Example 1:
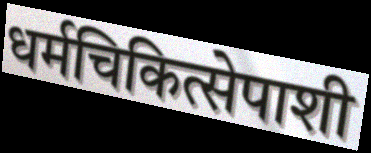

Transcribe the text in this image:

धर्मचिकित्सेपाशी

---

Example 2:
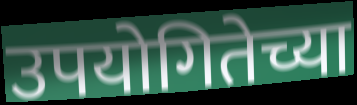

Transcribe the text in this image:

उपयोगितेच्या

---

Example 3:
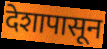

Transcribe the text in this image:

देशापासून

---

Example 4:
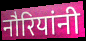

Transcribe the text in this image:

नौरियांनी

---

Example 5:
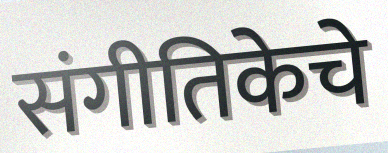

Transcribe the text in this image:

संगीतिकेचे